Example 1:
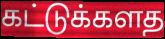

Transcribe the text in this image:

கட்டுக்களத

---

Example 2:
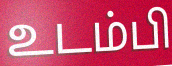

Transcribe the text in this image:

உடம்பி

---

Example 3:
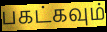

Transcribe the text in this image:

பகட்கவும்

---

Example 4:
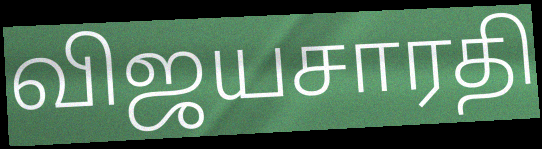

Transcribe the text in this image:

விஜயசாரதி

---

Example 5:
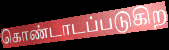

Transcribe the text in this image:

கொண்டாடப்படுகிற